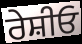
ਰੇਸ਼ੀਓ